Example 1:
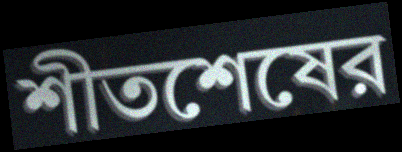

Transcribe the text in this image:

শীতশেষের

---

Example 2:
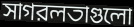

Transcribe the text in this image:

সাগরলতাগুলো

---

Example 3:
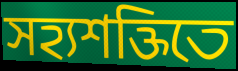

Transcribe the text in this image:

সহ্যশক্তিতে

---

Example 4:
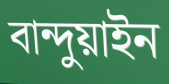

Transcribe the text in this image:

বান্দুয়াইন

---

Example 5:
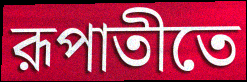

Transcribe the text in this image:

রূপাতীতে